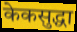
केकसुद्धा